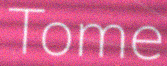
Tome